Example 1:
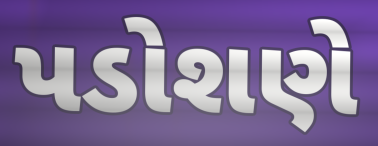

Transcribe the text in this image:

પડોશણે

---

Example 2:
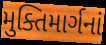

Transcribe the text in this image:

મુક્તિમાર્ગનાં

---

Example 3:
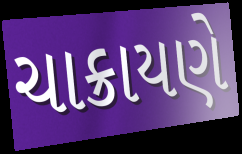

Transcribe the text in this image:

ચાક્રાયણે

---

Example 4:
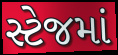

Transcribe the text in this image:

સ્ટેજમાં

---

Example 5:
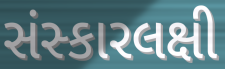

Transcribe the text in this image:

સંસ્કારલક્ષી